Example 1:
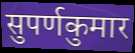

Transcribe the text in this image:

सुपर्णकुमार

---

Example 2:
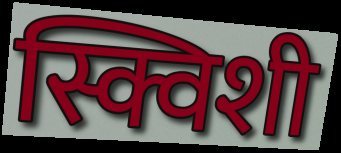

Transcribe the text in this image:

स्क्विशी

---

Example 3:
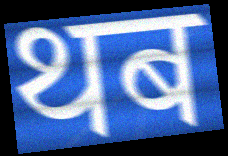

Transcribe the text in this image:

थब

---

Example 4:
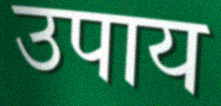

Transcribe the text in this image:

उपाय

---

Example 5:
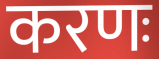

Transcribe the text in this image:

करणः